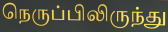
நெருப்பிலிருந்து